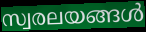
സ്വരലയങ്ങൾ